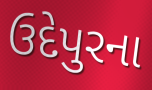
ઉદેપુરના